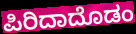
ಪಿರಿದಾದೊಡಂ